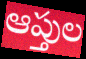
ఆప్తుల